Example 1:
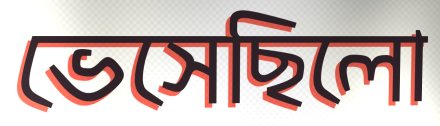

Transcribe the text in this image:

ভেসেছিলো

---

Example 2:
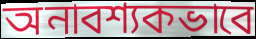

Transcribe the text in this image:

অনাবশ্যকভাবে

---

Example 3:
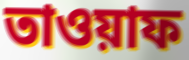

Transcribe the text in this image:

তাওয়াফ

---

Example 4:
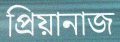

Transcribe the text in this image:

প্রিয়ানাজ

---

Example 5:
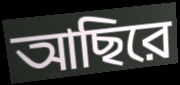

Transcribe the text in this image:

আছিরে